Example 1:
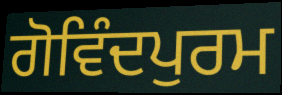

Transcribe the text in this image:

ਗੋਵਿੰਦਪੁਰਮ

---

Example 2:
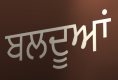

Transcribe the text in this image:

ਬਲਦੂਆਂ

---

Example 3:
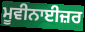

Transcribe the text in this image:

ਮੂਵੀਨਾਈਜ਼ਰ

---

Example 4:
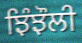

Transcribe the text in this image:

ਝਿੰਝੌਲੀ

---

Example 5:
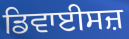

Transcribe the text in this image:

ਡਿਵਾਈਸਜ਼